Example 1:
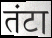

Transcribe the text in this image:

तंटा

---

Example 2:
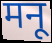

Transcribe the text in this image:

मनू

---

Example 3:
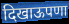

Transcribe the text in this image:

दिखाऊपणा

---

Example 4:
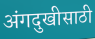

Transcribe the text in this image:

अंगदुखीसाठी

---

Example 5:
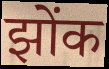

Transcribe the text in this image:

झोंक